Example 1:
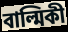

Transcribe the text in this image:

বাল্মিকী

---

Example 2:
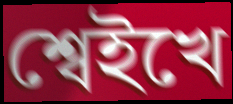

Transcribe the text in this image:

শ্বেইখে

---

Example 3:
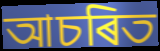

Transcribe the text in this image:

আচৰিত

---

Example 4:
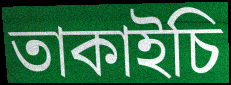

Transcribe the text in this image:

তাকাইচি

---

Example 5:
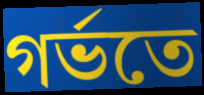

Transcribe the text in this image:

গৰ্ভতে